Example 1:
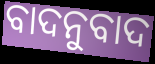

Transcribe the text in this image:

ବାଦନୁବାଦ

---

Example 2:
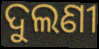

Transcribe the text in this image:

ଦୁଲଣୀ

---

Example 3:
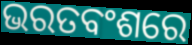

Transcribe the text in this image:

ଭରତବଂଶରେ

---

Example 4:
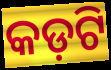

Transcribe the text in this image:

କଡ଼ଟି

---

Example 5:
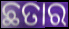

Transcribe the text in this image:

ଛତାର